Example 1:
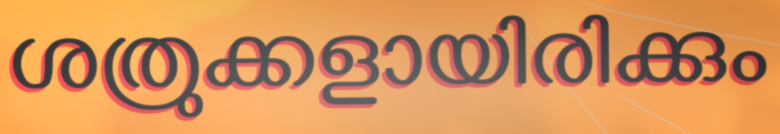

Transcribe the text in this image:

ശത്രുക്കളായിരിക്കും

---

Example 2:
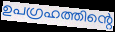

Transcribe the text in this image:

ഉപഗ്രഹത്തിന്റെ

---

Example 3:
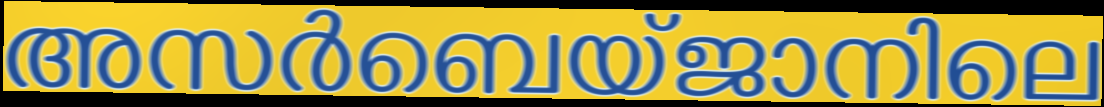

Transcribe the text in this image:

അസർബെയ്ജാനിലെ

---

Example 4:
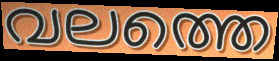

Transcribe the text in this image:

വലത്തെ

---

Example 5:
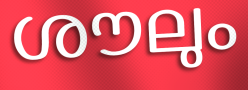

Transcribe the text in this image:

ശൗലും